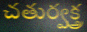
చతుర్వక్త్ర